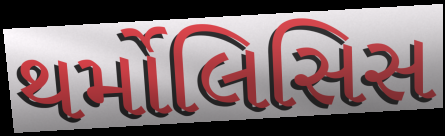
થર્મોલિસિસ